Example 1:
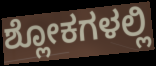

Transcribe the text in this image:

ಶ್ಲೋಕಗಳಲ್ಲಿ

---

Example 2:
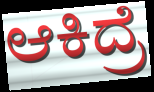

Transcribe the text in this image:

ಆಕಿದ್ರೆ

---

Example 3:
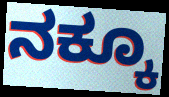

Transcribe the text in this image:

ನಕ್ಕೂ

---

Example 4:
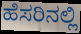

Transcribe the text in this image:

ಹೆಸರಿನಲ್ಲಿ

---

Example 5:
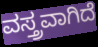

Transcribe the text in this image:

ವಸ್ತ್ರವಾಗಿದೆ